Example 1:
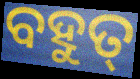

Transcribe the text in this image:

ବହୁତ୍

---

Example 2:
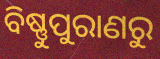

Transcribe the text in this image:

ବିଷ୍ଣୁପୁରାଣରୁ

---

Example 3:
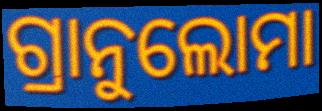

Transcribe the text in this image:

ଗ୍ରାନୁଲୋମା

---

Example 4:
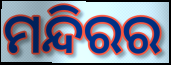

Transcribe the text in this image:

ମନ୍ଦିରର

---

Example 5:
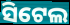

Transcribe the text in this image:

ସିଟେଲ